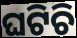
ଘଟିଚି